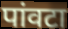
पांवटा